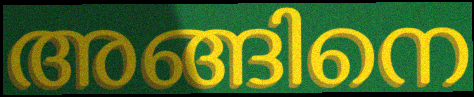
അങ്ങിനെ